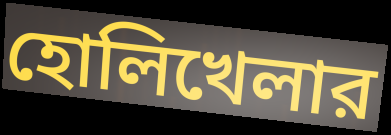
হোলিখেলার